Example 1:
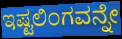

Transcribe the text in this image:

ಇಷ್ಟಲಿಂಗವನ್ನೇ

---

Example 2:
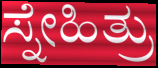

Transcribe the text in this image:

ಸ್ನೇಹಿತ್ರು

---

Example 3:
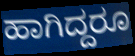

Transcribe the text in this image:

ಹಾಗಿದ್ದರೂ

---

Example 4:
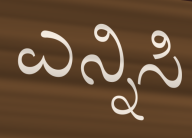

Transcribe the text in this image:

ಎನ್ನಿಸಿ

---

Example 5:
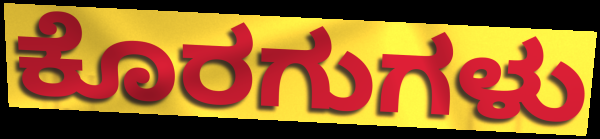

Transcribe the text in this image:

ಕೊರಗುಗಳು